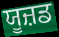
ਯੂਜ਼ਡ